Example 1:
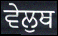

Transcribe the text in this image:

ਵੇਲੁਥ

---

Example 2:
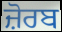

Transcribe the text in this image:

ਜ਼ੋਰਬ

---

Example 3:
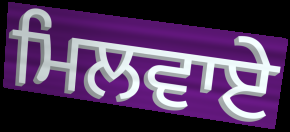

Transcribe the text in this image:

ਮਿਲਵਾਏ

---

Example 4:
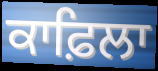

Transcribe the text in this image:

ਕਾਫ਼ਿਲਾ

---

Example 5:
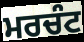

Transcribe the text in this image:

ਮਰਚੰਟ